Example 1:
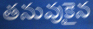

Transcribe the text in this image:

తనువుకైన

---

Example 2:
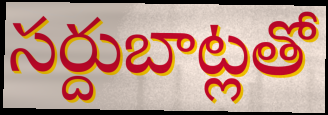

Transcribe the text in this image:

సర్దుబాట్లతో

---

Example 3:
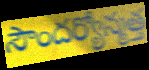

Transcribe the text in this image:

సౌందర్యోన్మత్త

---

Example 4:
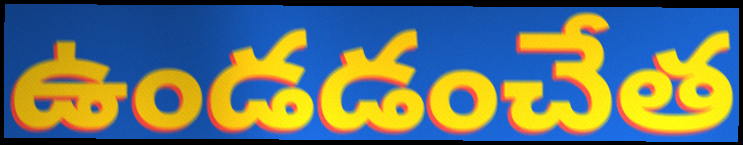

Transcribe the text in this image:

ఉండడంచేత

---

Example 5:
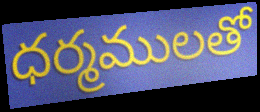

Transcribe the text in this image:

ధర్మములతో